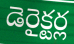
డెరైక్టర్ల